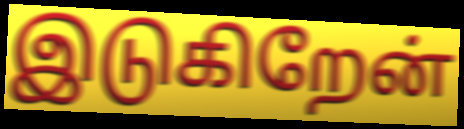
இடுகிறேன்